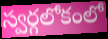
స్వర్గలోకంలో